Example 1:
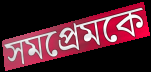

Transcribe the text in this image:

সমপ্রেমকে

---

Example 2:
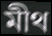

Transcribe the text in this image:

মীথ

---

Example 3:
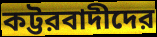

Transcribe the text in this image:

কট্টরবাদীদের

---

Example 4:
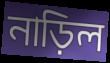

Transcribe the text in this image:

নাড়িল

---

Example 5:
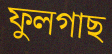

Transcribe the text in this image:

ফুলগাছ